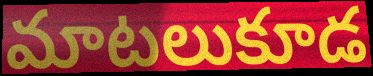
మాటలుకూడ